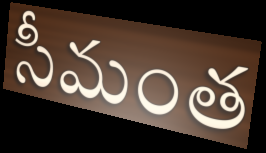
సీమంత